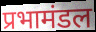
प्रभामंडल